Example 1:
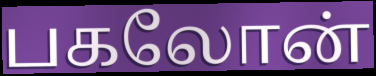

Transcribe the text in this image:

பகலோன்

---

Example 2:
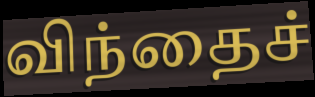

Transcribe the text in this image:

விந்தைச்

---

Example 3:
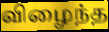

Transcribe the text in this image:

விழைந்த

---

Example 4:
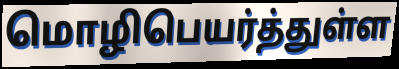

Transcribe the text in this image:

மொழிபெயர்த்துள்ள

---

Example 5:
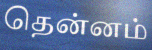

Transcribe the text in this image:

தென்னம்